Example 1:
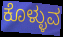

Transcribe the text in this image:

ಕೊಳ್ಳುವ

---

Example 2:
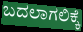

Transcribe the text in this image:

ಬದಲಾಗಲಿಕ್ಕೆ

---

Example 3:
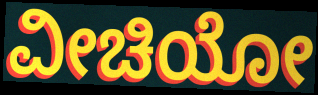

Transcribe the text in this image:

ವೀಚಿಯೋ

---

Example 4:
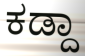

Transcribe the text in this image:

ಕಡ್ದಾ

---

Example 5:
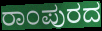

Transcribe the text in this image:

ರಾಂಪುರದ